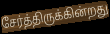
சேர்த்திருக்கின்றது